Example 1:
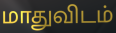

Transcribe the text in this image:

மாதுவிடம்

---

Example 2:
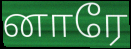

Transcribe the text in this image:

னாரே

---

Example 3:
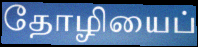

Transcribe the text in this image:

தோழியைப்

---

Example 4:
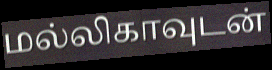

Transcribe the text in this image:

மல்லிகாவுடன்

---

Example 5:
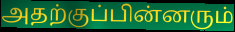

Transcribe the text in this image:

அதற்குப்பின்னரும்